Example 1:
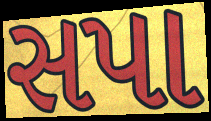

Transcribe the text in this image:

સપા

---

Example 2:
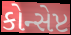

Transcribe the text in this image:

કોન્સેપ્ટ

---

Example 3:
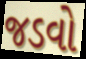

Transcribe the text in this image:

જડવો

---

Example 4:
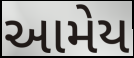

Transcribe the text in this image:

આમેય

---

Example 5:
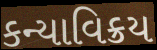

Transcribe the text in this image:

કન્યાવિક્રય